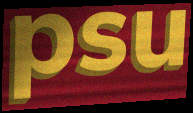
psu